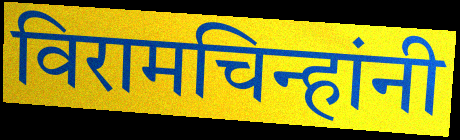
विरामचिन्हांनी